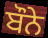
ਬੌਨੇ